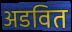
अडवित